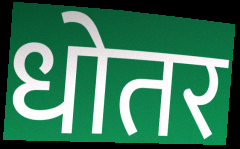
धोतर